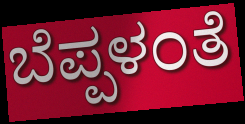
ಬೆಪ್ಪಳಂತೆ